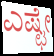
ಎಷ್ಟೇ